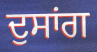
ਦੁਸਾਂਗ